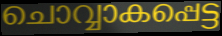
ചൊവ്വാകപ്പെട്ട